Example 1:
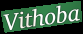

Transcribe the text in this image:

Vithoba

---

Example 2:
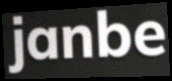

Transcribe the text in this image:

janbe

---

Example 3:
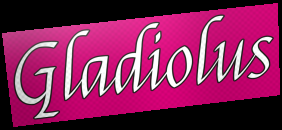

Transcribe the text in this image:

Gladiolus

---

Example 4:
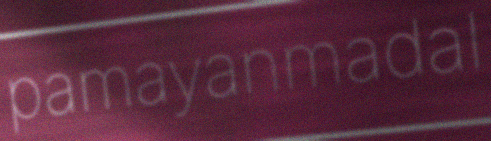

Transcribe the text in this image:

pamayanmadal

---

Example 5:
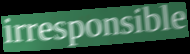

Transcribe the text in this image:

irresponsible